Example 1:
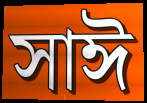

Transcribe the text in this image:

সাঈ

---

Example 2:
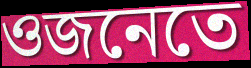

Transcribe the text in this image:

ওজনেতে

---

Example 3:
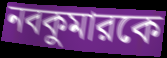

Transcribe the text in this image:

নবকুমারকে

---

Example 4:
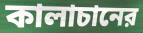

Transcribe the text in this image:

কালাচানের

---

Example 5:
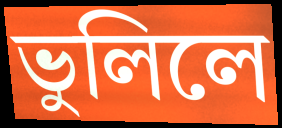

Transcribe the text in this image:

ভুলিলে